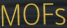
MOFs